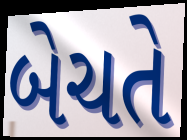
બેચતે